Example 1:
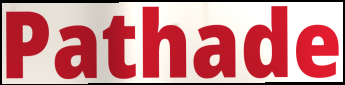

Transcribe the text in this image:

Pathade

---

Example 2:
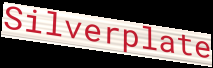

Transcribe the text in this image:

Silverplate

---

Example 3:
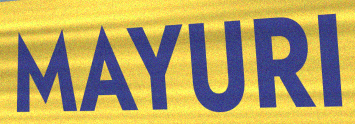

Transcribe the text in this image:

MAYURI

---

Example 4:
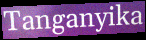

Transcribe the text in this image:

Tanganyika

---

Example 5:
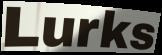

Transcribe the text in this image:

Lurks